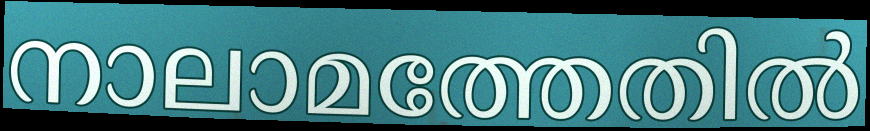
നാലാമത്തേതിൽ